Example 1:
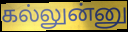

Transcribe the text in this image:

கல்லுன்னு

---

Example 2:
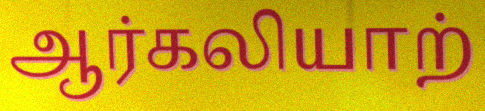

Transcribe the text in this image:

ஆர்கலியாற்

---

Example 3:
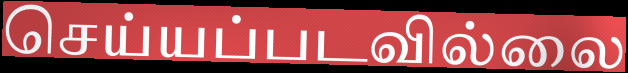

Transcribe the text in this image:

செய்யப்படவில்லை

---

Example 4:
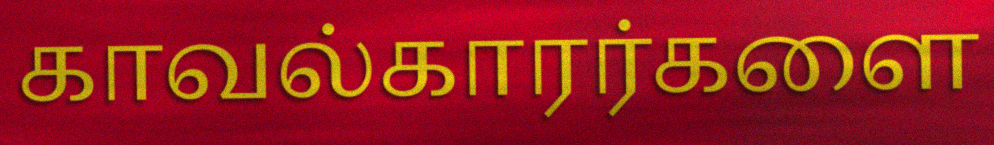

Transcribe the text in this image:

காவல்காரர்களை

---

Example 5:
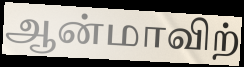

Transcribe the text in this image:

ஆன்மாவிற்